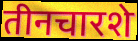
तीनचारशे